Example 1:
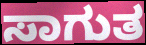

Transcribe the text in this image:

ಸಾಗುತ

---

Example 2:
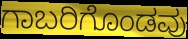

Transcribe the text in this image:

ಗಾಬರಿಗೊಂಡವು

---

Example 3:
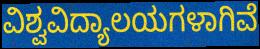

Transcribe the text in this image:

ವಿಶ್ವವಿದ್ಯಾಲಯಗಳಾಗಿವೆ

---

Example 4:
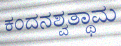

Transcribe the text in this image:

ಕಂದನಶ್ವತ್ಥಾಮ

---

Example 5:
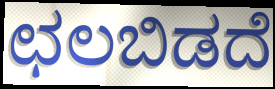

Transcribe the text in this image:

ಛಲಬಿಡದೆ